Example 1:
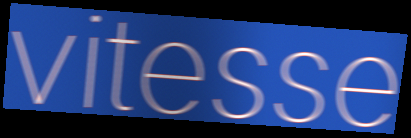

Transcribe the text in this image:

vitesse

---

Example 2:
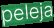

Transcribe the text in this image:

peleja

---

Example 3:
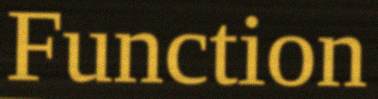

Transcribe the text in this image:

Function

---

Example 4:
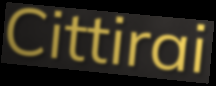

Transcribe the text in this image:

Cittirai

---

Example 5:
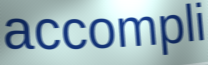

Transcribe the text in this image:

accompli